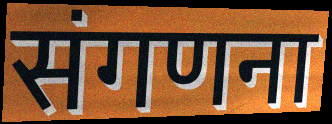
संगणना